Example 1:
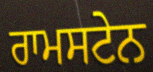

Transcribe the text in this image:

ਰਾਮਸਟੇਨ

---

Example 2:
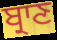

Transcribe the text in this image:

ਬ੍ਰਾਣ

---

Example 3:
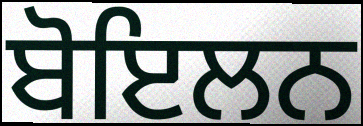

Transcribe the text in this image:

ਬੋਇਲਨ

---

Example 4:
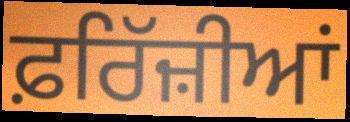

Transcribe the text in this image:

ਫ਼ਰਿੱਜ਼ੀਆਂ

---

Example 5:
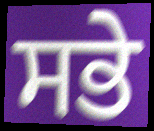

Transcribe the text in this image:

ਸਭੇ